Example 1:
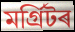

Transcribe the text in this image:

মৰ্গ্ৰিটৰ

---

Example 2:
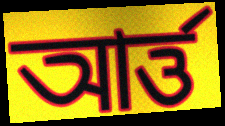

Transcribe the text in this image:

আৰ্ত্ত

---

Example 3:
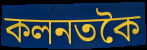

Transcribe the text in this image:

কলনতকৈ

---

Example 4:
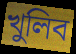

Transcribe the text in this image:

খুলিব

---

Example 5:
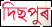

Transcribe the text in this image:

দিছপুৰ